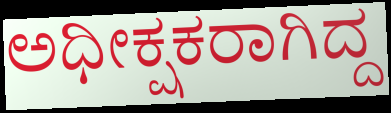
ಅಧೀಕ್ಷಕರಾಗಿದ್ದ